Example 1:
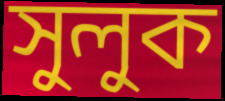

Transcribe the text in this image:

সুলুক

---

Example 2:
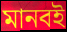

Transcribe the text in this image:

মানবই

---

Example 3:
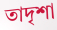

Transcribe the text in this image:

তাদৃশা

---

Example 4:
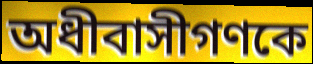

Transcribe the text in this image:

অধীবাসীগণকে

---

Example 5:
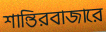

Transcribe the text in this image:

শান্তিরবাজারে